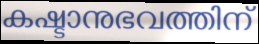
കഷ്ടാനുഭവത്തിന്